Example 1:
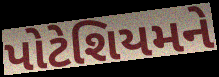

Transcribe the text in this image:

પોટેશિયમને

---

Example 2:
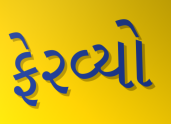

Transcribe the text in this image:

ફેરવ્યો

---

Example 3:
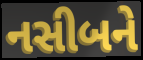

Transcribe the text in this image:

નસીબને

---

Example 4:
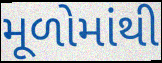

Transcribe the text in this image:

મૂળોમાંથી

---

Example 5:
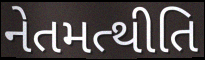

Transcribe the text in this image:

નેતમત્થીતિ